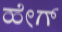
ಹೇಗ್